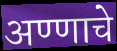
अण्णाचे